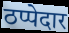
ठप्पेदार